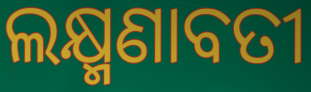
ଲକ୍ଷ୍ମଣାବତୀ